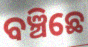
ବଞ୍ଚିଛେ